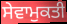
ਸੇਵਾਮੁਕਤੀ